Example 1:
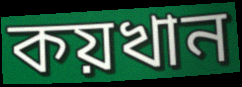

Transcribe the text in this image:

কয়খান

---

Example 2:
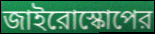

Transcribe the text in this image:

জাইরোস্কোপের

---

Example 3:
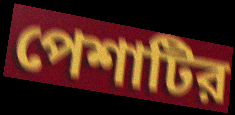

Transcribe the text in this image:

পেশাটির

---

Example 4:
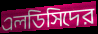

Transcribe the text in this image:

এলডিসিদের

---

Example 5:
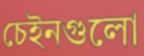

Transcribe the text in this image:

চেইনগুলো